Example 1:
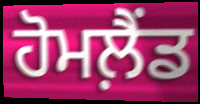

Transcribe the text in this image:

ਹੋਮਲ਼ੈਂਡ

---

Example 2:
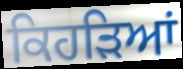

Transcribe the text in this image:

ਕਿਹੜਿਆਂ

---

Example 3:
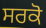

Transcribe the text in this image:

ਸਰਕੋ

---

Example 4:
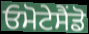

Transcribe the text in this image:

ਓਮੋਟੇਸੈਂਡੋ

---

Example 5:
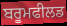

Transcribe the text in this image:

ਬਰੂਮਫੀਲਡ